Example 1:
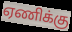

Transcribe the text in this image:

ஏணிக்கு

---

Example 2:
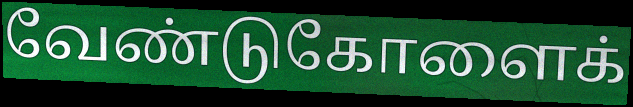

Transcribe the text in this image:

வேண்டுகோளைக்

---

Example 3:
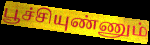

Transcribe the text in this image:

பூச்சியுண்ணும்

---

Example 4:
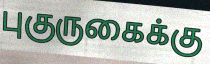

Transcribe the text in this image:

புகுருகைக்கு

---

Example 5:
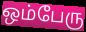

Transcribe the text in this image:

ஒம்பேரு